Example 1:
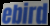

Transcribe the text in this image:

ebird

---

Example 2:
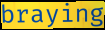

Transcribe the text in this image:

braying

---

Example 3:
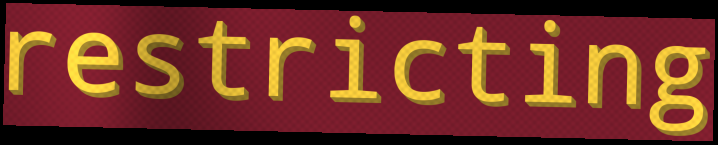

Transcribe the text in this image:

restricting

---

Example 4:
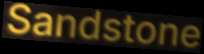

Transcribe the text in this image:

Sandstone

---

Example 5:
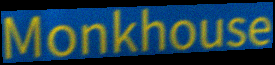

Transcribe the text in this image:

Monkhouse